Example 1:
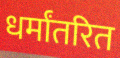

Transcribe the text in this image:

धर्मांतरित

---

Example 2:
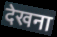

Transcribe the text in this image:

देखना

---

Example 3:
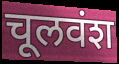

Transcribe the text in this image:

चूलवंश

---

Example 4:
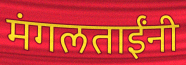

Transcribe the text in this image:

मंगलताईंनी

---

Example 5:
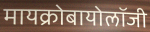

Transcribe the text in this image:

मायक्रोबायोलॉजी